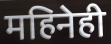
महिनेही